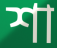
শা